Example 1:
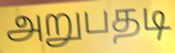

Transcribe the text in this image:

அறுபதடி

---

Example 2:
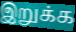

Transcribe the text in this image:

இறுக்க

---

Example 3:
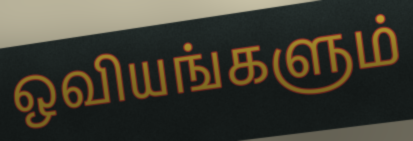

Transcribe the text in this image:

ஒவியங்களும்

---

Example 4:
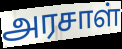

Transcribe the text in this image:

அரசாள்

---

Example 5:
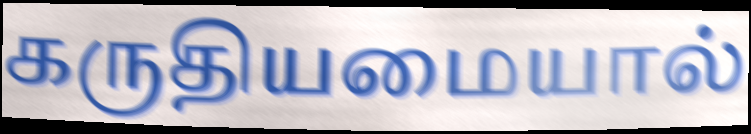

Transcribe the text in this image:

கருதியமையால்